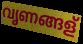
വൃണങ്ങള്